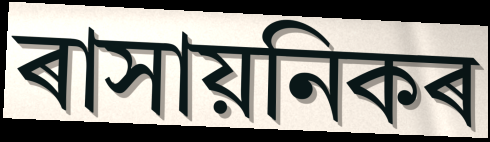
ৰাসায়নিকৰ